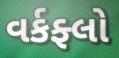
વર્કફ્લો